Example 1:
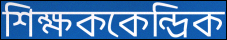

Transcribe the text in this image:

শিক্ষককেন্দ্রিক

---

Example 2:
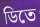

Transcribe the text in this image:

ডিতে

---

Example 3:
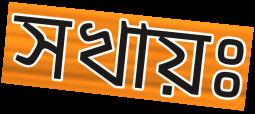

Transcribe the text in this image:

সখায়ঃ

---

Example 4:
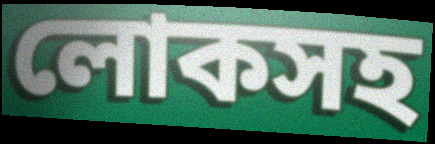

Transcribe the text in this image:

লোকসহ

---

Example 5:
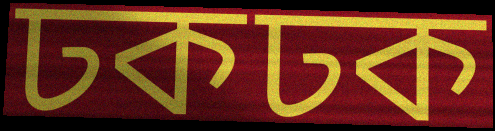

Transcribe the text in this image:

ঢকঢক